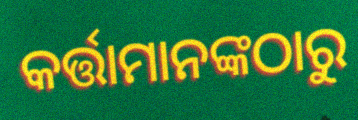
କର୍ତ୍ତାମାନଙ୍କଠାରୁ